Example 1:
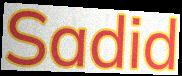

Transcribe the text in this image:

Sadid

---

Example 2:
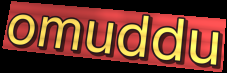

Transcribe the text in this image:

omuddu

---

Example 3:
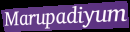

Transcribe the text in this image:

Marupadiyum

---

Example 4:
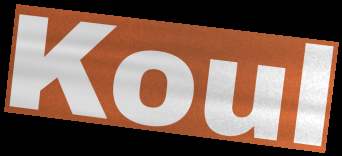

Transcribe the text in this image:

Koul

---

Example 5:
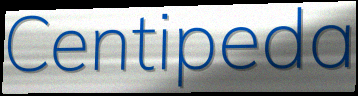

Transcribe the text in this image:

Centipeda